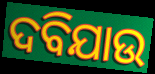
ଦବିଯାଉ